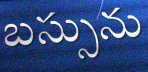
బస్సును